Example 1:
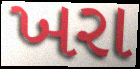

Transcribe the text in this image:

ખરા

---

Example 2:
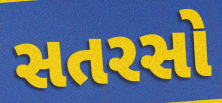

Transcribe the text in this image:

સતરસો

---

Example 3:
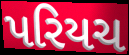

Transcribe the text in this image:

પરિયચ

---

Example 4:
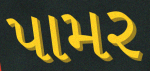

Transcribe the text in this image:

પામર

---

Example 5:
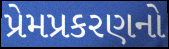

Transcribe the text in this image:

પ્રેમપ્રકરણનો